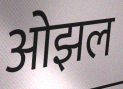
ओझल